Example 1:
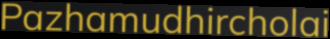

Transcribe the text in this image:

Pazhamudhircholai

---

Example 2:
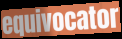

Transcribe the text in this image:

equivocator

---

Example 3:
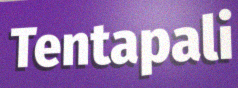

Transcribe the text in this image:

Tentapali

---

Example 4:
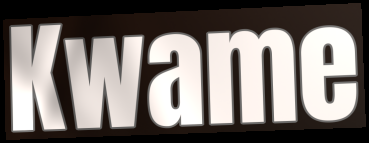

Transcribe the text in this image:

Kwame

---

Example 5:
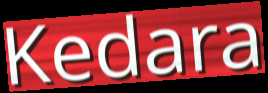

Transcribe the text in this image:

Kedara